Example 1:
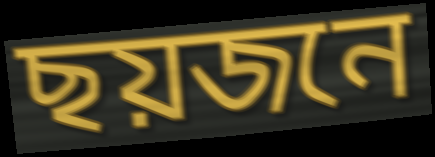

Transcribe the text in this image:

ছয়জনে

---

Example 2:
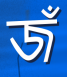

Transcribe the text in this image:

জঁ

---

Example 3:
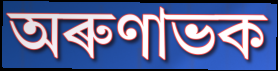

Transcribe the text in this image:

অৰুণাভক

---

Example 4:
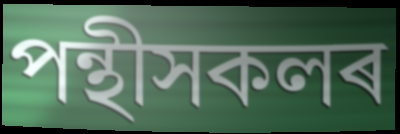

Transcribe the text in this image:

পন্থীসকলৰ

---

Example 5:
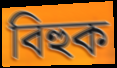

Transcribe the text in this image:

বিহুক